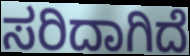
ಸರಿದಾಗಿದೆ